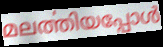
മലൎത്തിയപ്പോൾ